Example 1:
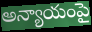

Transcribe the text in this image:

అన్యాయంపై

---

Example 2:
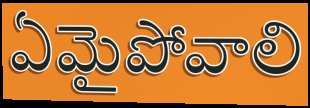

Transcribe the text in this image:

ఏమైపోవాలి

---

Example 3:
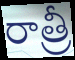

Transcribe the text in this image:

రాత్రీ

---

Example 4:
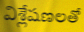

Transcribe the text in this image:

విశ్లేషణలతో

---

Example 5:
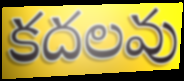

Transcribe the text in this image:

కదలవు